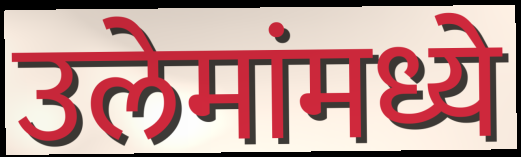
उलेमांमध्ये